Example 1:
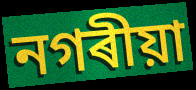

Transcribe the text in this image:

নগৰীয়া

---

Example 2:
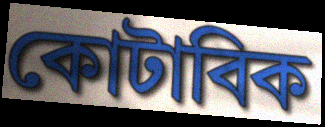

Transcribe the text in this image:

কোটাবিক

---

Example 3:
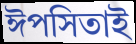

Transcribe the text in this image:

ঈপসিতাই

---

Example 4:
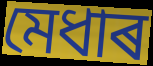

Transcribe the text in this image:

মেধাৰ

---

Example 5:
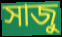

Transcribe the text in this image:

সাজু